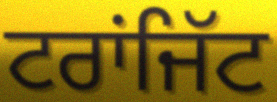
ਟਰਾਂਜਿੱਟ